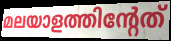
മലയാളത്തിന്റേത്